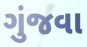
ગુંજવા